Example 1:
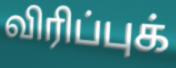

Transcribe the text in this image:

விரிப்புக்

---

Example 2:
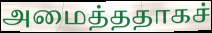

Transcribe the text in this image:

அமைத்ததாகச்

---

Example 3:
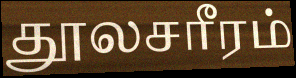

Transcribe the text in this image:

தூலசரீரம்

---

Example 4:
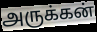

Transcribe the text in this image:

அருக்கன்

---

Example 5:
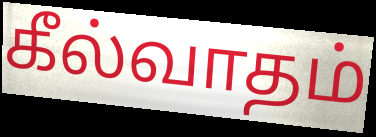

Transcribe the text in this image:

கீல்வாதம்